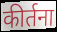
कीर्तना